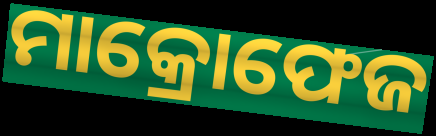
ମାକ୍ରୋଫେଜ